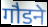
गौडने